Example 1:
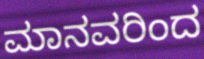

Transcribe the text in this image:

ಮಾನವರಿಂದ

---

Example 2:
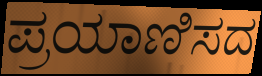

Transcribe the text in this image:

ಪ್ರಯಾಣಿಸದ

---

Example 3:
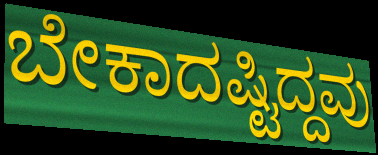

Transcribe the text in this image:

ಬೇಕಾದಷ್ಟಿದ್ದವು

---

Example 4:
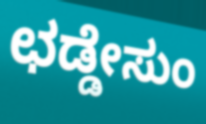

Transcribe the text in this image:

ಛಡ್ಡೇಸುಂ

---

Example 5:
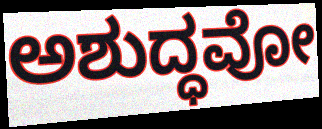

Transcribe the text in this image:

ಅಶುದ್ಧವೋ